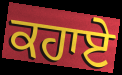
ਕਹਾਏ